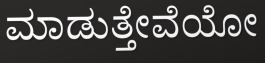
ಮಾಡುತ್ತೇವೆಯೋ